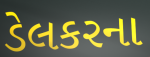
ડેલકરના